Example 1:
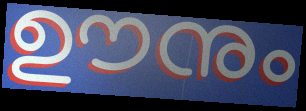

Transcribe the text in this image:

ഊനും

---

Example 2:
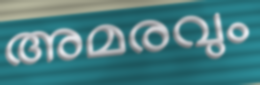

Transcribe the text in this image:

അമരവും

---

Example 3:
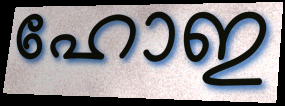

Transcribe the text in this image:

ഹോഇ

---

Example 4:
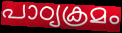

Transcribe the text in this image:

പാഠ്യക്രമം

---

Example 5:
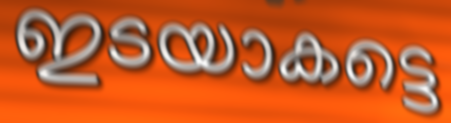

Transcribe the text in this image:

ഇടയാകട്ടെ